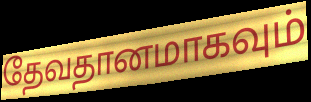
தேவதானமாகவும்